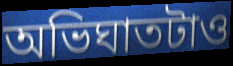
অভিঘাতটাও